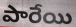
పారేయి